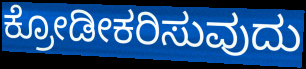
ಕ್ರೋಡೀಕರಿಸುವುದು